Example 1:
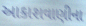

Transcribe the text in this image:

આકાશવાણીના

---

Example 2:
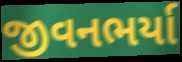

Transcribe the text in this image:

જીવનભર્યા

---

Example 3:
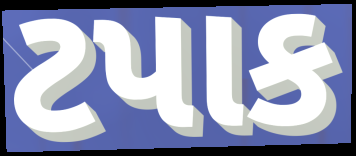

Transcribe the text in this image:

ટપાક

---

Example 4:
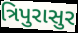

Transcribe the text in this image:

ત્રિપુરાસુર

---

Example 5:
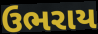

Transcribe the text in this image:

ઉભરાય